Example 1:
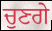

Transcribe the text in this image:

ਚੁਣਗੇ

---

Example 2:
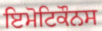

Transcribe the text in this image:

ਇਮੋਟਿਕੌਨਸ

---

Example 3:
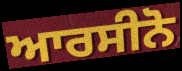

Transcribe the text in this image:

ਆਰਸੀਨੋ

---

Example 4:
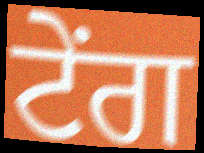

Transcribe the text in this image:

ਟੇਂਗ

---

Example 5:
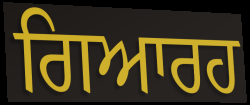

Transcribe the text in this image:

ਗਿਆਰਹ